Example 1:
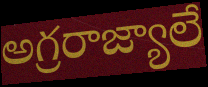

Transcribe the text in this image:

అగ్రరాజ్యాలే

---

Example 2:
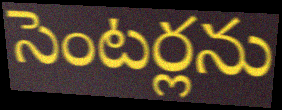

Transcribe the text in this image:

సెంటర్లను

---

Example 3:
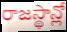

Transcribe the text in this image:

రాజస్థాన్లో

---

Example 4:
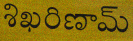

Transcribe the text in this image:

శిఖరిణామ్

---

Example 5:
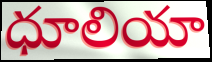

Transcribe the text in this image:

ధూలియా